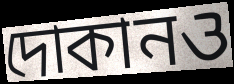
দোকানও